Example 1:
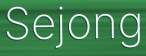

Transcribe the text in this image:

Sejong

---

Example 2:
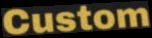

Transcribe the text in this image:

Custom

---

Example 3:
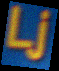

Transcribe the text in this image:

Lj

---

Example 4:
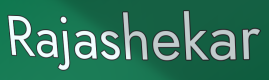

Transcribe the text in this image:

Rajashekar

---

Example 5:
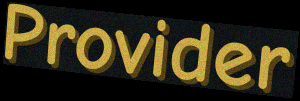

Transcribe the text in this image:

Provider